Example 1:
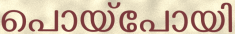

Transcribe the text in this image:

പൊയ്പോയി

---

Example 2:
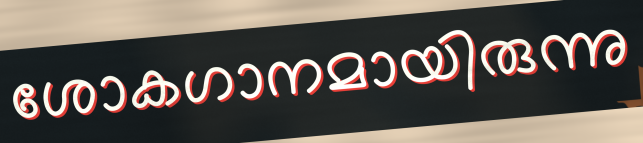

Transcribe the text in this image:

ശോകഗാനമായിരുന്നു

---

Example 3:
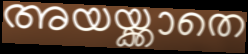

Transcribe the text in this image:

അയയ്ക്കാതെ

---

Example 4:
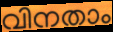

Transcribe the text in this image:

വിനതാം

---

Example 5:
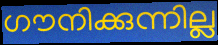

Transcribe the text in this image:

ഗൗനിക്കുന്നില്ല